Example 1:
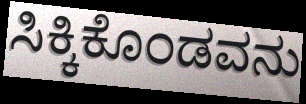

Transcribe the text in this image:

ಸಿಕ್ಕಿಕೊಂಡವನು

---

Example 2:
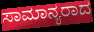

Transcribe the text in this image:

ಸಾಮಾನ್ಯರಾದ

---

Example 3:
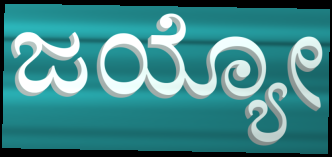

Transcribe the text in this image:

ಜಯ್ಯೋ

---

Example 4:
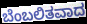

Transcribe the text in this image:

ಬೆಂಬಲಿತವಾದ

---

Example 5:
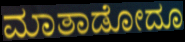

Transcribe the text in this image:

ಮಾತಾಡೋದೂ